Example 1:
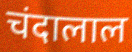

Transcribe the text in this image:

चंदालाल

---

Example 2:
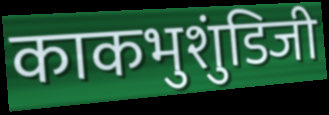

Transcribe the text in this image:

काकभुशुंडिजी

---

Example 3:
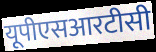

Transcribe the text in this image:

यूपीएसआरटीसी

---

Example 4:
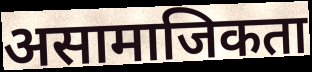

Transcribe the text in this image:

असामाजिकता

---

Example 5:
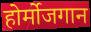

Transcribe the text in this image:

होर्मोजगान